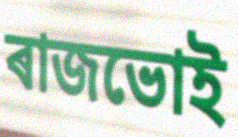
ৰাজভোই